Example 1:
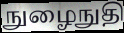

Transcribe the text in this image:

நுழைநுதி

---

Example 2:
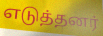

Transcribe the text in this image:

எடுத்தனர்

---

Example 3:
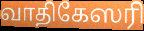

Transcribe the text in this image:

வாதிகேஸரி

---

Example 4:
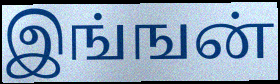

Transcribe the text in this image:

இங்ஙன்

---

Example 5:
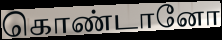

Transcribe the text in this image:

கொண்டானோ